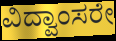
ವಿದ್ವಾಂಸರೇ